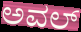
ಅವಲ್